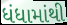
ધંધામાંથી